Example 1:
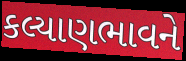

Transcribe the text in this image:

કલ્યાણભાવને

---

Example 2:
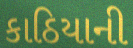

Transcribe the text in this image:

કાઠિયાની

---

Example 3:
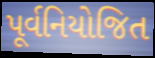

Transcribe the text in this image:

પૂર્વનિયોજિત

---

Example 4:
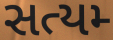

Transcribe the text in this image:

સત્યમ્‍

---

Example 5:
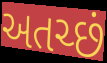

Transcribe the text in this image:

અતચ્છં